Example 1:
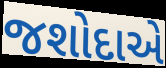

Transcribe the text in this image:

જશોદાએ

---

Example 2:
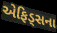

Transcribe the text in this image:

એફિડ્સના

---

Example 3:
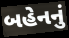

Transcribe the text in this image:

બહેનનું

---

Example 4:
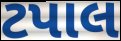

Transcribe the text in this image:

ટપાલ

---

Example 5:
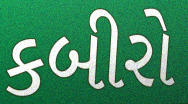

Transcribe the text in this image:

કબીરો